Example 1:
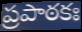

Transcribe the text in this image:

ప్రపాఠకః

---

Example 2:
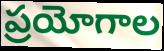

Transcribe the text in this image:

ప్రయోగాల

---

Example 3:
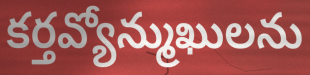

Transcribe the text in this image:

కర్తవ్యోన్ముఖులను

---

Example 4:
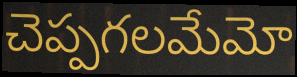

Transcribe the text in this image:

చెప్పగలమేమో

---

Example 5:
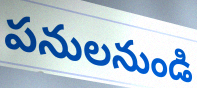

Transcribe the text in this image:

పనులనుండి